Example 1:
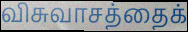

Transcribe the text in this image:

விசுவாசத்தைக்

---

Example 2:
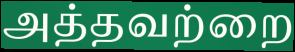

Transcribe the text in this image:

அத்தவற்றை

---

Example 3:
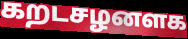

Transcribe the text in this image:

கறடசழனளக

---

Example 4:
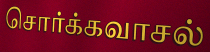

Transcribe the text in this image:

சொர்க்கவாசல்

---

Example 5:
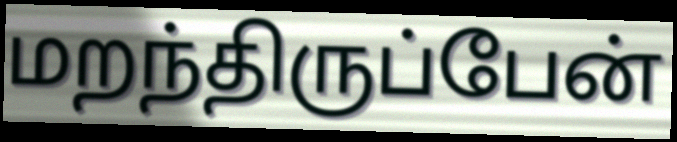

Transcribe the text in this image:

மறந்திருப்பேன்